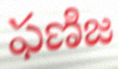
ఫణిజ